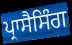
ਪ੍ਰਾਸੈਸਿੰਗ